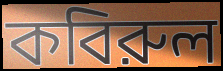
কবিরুল